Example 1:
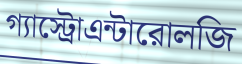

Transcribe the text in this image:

গ্যাস্ট্রোএন্টারোলজি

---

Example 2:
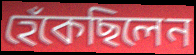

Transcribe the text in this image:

হেঁকেছিলেন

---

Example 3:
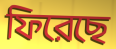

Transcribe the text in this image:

ফিরেছে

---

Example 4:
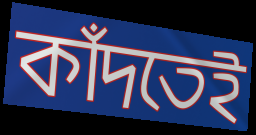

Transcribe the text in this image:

কাঁদতেই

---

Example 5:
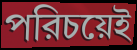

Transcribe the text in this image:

পরিচয়েই